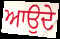
ਆਉਦੇ